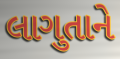
લાગુતાને